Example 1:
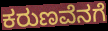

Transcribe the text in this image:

ಕರುಣವೆನಗೆ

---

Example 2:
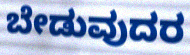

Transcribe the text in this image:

ಬೇಡುವುದರ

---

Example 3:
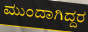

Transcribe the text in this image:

ಮುಂದಾಗಿದ್ದರ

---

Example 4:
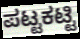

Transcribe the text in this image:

ಪಟ್ಟಕಟ್ಟಿ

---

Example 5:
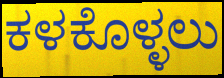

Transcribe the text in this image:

ಕಳಕೊಳ್ಳಲು